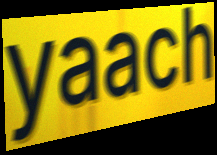
yaach